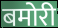
बमोरी